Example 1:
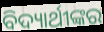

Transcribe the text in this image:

ବିଦ୍ୟାର୍ଥୀଙ୍କର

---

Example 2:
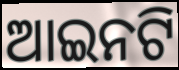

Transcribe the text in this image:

ଆଇନଟି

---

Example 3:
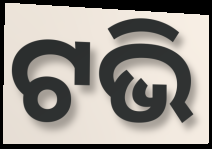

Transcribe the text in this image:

ଟଭି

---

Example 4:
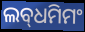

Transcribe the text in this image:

ଲବ୍‌ଧମିମଂ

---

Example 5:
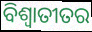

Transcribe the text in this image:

ବିଶ୍ଵାତୀତର